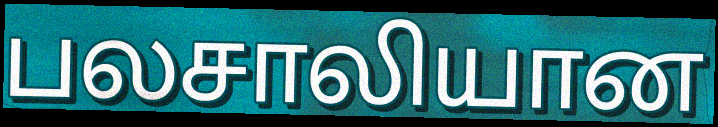
பலசாலியான